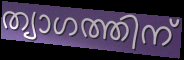
ത്യാഗത്തിന്